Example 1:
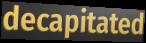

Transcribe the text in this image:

decapitated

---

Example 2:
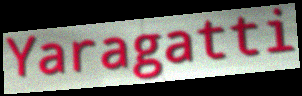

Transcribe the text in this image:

Yaragatti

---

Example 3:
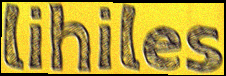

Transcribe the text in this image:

lihiles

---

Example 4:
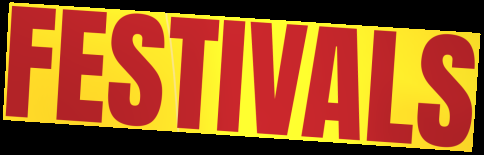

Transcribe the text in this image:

FESTIVALS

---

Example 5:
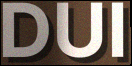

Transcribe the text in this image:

DUI